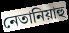
নেতানিয়াহু